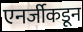
एनर्जीकडून